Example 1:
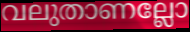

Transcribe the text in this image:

വലുതാണല്ലോ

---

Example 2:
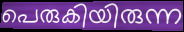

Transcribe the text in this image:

പെരുകിയിരുന്ന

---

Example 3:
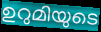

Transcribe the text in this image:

ഉറുമിയുടെ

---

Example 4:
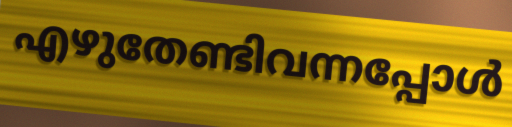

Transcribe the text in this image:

എഴുതേണ്ടിവന്നപ്പോൾ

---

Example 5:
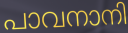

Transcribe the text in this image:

പാവനാനി